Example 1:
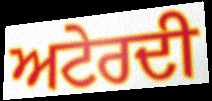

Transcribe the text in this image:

ਅਟੇਰਦੀ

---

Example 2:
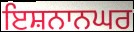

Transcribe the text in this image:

ਇਸ਼ਨਾਨਘਰ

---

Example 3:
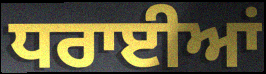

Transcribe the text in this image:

ਧਰਾਈਆਂ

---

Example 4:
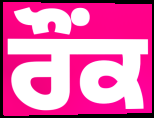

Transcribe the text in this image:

ਰੌਂਕ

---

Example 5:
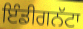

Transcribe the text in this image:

ਇੰਡੀਗਨੱਟਾ